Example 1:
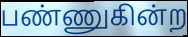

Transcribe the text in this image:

பண்ணுகின்ற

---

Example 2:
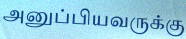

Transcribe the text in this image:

அனுப்பியவருக்கு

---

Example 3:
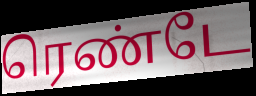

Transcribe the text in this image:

ரெண்டே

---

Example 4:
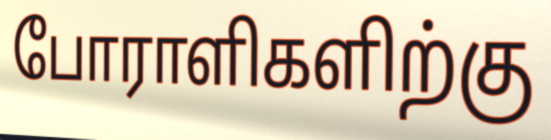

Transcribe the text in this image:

போராளிகளிற்கு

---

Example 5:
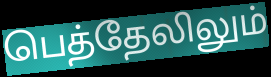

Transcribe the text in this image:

பெத்தேலிலும்